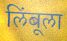
लिंबूला